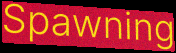
Spawning